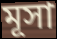
মূসা